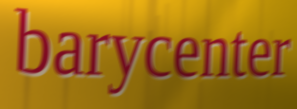
barycenter